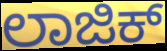
ಲಾಜಿಕ್